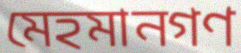
মেহমানগণ